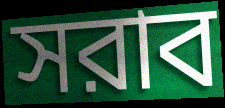
সরাব